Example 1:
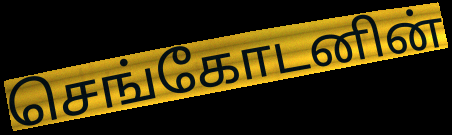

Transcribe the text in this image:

செங்கோடனின்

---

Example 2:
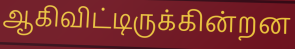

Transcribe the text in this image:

ஆகிவிட்டிருக்கின்றன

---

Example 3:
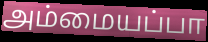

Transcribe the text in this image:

அம்மையப்பா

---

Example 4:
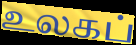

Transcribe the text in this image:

உலகப்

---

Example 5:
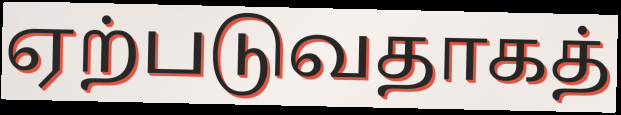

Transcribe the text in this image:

ஏற்படுவதாகத்